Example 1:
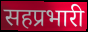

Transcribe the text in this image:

सहप्रभारी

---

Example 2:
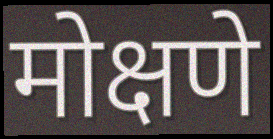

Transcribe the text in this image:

मोक्षणे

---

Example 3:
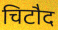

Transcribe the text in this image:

चिटौद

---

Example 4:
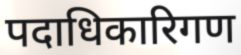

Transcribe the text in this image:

पदाधिकारिगण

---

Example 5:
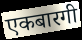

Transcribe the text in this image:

एकबारगी